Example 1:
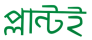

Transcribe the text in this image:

প্লান্টই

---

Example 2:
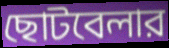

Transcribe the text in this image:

ছোটবেলার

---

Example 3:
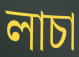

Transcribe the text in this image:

লাচা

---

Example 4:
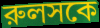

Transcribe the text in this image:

রুলসকে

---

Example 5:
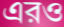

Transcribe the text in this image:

এরও